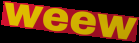
weew